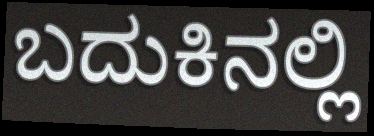
ಬದುಕಿನಲ್ಲಿ